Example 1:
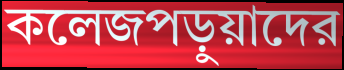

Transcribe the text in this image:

কলেজপড়ুয়াদের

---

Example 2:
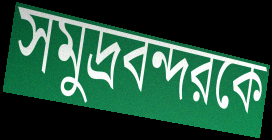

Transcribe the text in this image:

সমুদ্রবন্দরকে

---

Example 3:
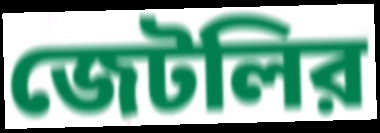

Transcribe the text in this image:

জেটলির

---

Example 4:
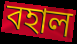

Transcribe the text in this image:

বহাল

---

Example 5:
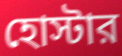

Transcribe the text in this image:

হোস্টার